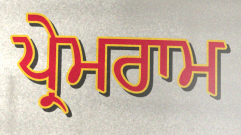
ਪ੍ਰੇਮਰਾਮ